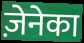
ज़ेनेका